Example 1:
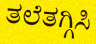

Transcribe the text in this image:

ತಲೆತಗ್ಗಿಸಿ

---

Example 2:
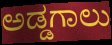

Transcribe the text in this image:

ಅಡ್ಡಗಾಲು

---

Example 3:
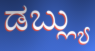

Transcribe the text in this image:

ಡಬ್ಲ್ಯು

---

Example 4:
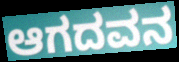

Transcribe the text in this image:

ಆಗದವನ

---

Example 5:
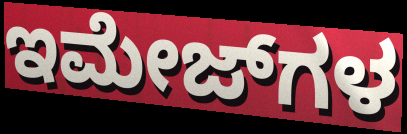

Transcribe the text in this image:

ಇಮೇಜ್‌ಗಳ